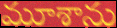
మూశాను